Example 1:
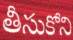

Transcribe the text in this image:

తీసుకోని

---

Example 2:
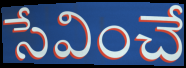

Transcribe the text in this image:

సేవించే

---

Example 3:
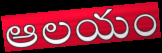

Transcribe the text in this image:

ఆలయం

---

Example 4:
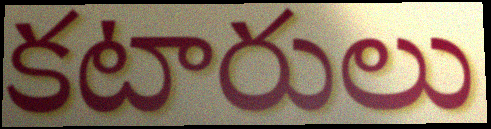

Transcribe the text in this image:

కటారులు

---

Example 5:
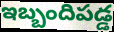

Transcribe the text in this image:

ఇబ్బందిపడ్డ